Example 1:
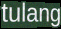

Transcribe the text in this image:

tulang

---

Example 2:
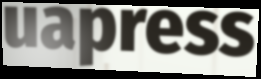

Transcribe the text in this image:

uapress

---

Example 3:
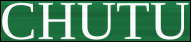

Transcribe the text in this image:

CHUTU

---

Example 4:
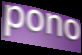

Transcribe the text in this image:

pono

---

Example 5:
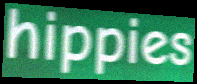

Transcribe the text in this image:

hippies